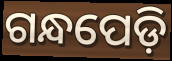
ଗନ୍ଧପେଡ଼ି